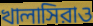
খালাসিরাও